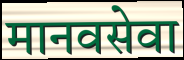
मानवसेवा